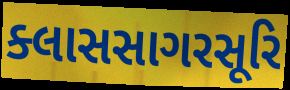
ક્લાસસાગરસૂરિ